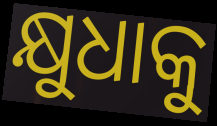
କ୍ଷୁଧାକୁ